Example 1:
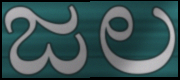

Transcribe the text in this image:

ಜಲ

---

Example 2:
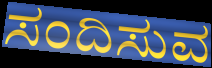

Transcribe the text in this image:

ಸಂದಿಸುವ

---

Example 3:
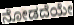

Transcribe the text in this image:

ನೋಡದೆಯೇ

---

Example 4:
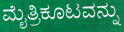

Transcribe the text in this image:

ಮೈತ್ರಿಕೂಟವನ್ನು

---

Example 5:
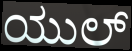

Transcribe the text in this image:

ಯುಲ್